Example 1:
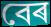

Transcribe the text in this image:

বেৰ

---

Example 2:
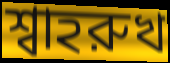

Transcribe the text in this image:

শ্বাহৰুখ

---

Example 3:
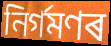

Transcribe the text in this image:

নিৰ্গমণৰ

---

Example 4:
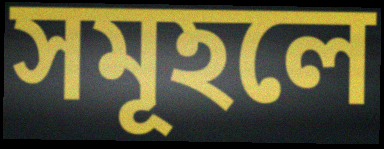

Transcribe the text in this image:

সমূহলে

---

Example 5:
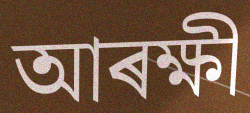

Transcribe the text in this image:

আৰক্ষী